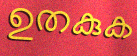
ഉതകുക